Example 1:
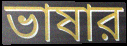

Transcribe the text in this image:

ভাষার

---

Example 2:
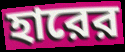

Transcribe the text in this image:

হারের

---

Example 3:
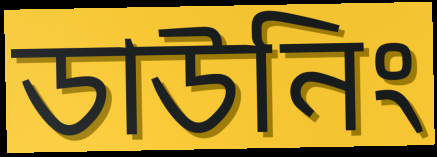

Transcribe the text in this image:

ডাউনিং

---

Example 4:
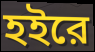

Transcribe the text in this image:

হইরে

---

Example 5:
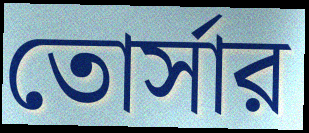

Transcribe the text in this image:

তোর্সার